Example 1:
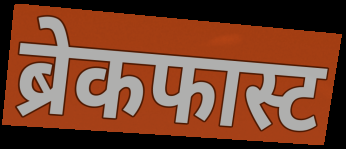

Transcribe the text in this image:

ब्रेकफास्ट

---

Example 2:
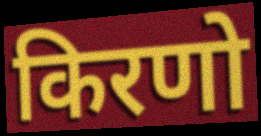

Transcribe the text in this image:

किरणो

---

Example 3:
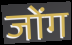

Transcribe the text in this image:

जोंग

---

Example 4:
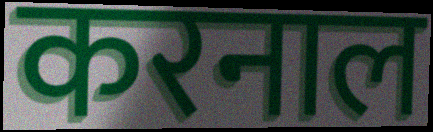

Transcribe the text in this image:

करनाल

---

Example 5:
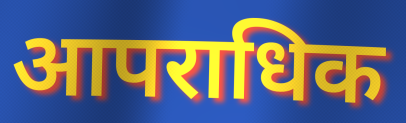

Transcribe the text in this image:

आपराधिक